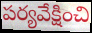
పర్యవేక్షించి